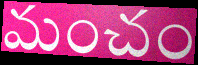
మంచం